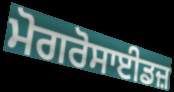
ਮੋਗਰੋਸਾਈਡਜ਼